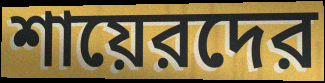
শায়েরদের